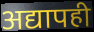
अद्यापही